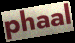
phaal